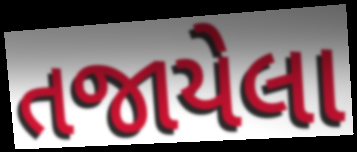
તજાયેલા